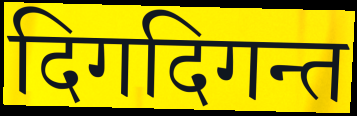
दिगदिगन्त